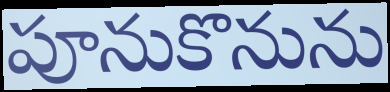
పూనుకొనును